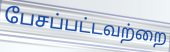
பேசப்பட்டவற்றை